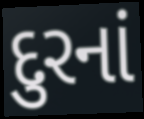
દુરનાં